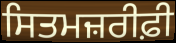
ਸਿਤਮਜ਼ਰੀਫ਼ੀ